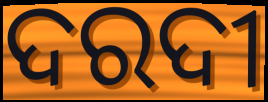
ଦରଦୀ